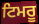
ਟਿਮਰੂ